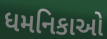
ધમનિકાઓ